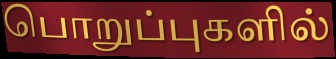
பொறுப்புகளில்